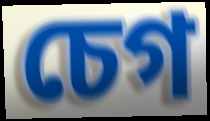
চেগ